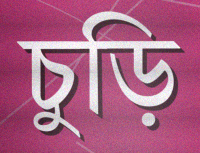
চুড়ি